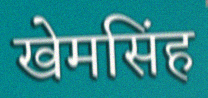
खेमसिंह